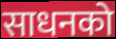
साधनको